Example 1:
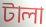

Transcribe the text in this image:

টালা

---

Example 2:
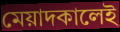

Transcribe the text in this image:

মেয়াদকালেই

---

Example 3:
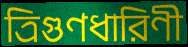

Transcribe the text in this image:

ত্রিগুণধারিণী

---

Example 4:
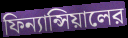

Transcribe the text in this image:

ফিন্যান্সিয়ালের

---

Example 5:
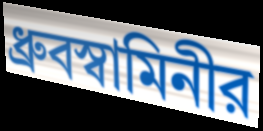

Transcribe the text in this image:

ধ্রুবস্বামিনীর